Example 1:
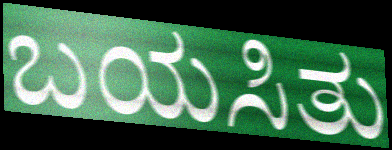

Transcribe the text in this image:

ಬಯಸಿತು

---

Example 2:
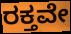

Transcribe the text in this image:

ರಕ್ತವೇ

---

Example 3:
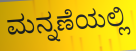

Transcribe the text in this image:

ಮನ್ನಣೆಯಲ್ಲಿ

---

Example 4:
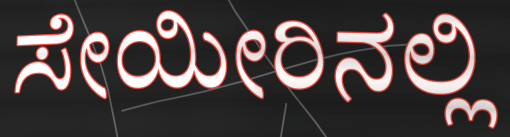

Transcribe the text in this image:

ಸೇಯೀರಿನಲ್ಲಿ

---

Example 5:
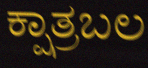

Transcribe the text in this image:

ಕ್ಷಾತ್ರಬಲ